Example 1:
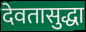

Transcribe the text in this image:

देवतासुद्धा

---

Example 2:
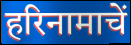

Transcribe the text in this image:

हरिनामाचें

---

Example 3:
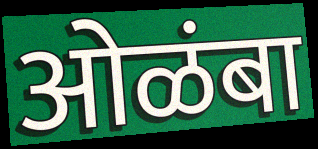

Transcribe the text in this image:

ओळंबा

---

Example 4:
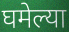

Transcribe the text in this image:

घमेल्या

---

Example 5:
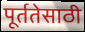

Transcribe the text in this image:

पूर्ततेसाठी